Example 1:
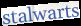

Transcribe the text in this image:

stalwarts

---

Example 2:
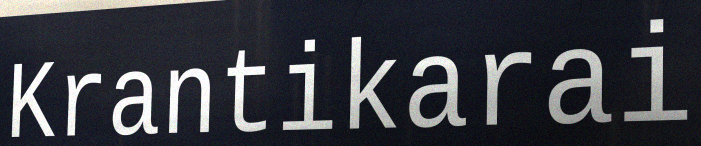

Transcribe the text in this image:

Krantikarai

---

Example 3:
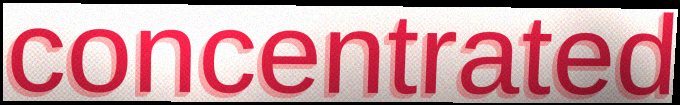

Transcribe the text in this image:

concentrated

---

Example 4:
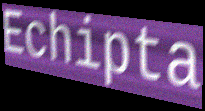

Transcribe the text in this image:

Echipta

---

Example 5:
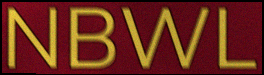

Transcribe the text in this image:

NBWL